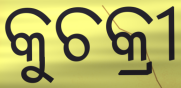
କୁଚକ୍ରୀ